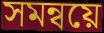
সমন্বয়ে